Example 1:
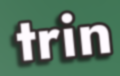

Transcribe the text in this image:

trin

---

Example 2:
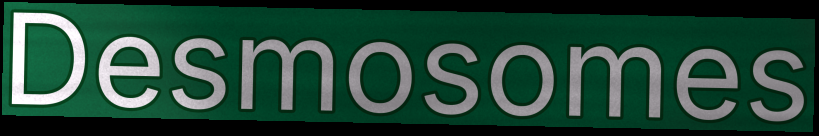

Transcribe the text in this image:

Desmosomes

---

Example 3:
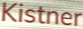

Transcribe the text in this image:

Kistner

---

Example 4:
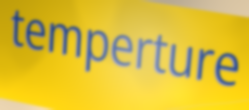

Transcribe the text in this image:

temperture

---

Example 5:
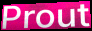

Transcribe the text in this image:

Prout